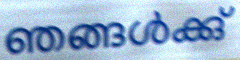
ഞങ്ങൾക്കു്